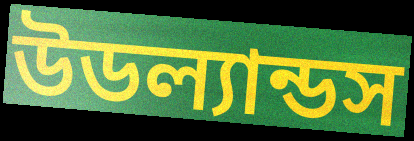
উডল্যান্ডস